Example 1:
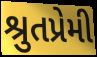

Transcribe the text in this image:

શ્રુતપ્રેમી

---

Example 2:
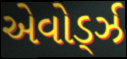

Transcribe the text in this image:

એવોર્ડ્ઝ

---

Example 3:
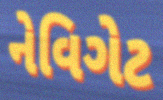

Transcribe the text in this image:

નેવિગેટ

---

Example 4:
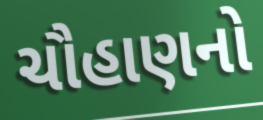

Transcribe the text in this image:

ચૌહાણનો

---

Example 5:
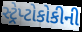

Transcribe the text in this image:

સ્ટ્રેપ્ટોકોકીની